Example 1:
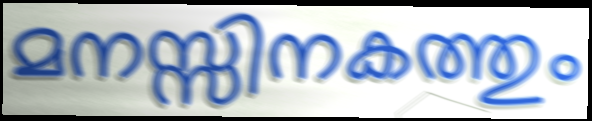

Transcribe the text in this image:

മനസ്സിനകത്തും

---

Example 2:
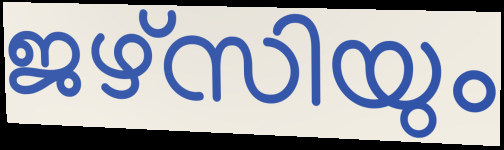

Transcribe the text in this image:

ജഴ്സിയും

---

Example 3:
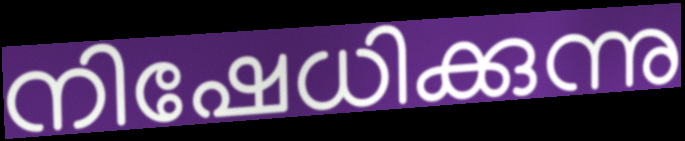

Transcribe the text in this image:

നിഷേധിക്കുന്നു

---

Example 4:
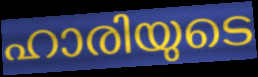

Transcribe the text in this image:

ഹാരിയുടെ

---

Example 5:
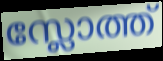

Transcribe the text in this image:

സ്ലോത്ത്